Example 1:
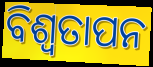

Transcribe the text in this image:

ବିଶ୍ବତାପନ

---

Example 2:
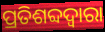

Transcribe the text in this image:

ପ୍ରତିଶବ୍ଦଦ୍ୱାରା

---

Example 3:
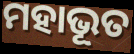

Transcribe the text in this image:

ମହାଭୂତ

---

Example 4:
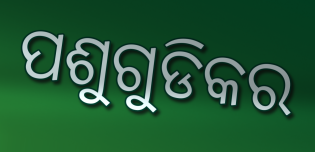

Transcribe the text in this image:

ପଶୁଗୁଡିକର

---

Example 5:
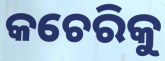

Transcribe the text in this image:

କଚେରିକୁ